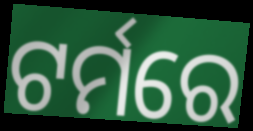
ଟର୍ମରେ